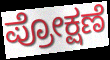
ಪ್ರೋಕ್ಷಣೆ